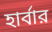
হার্বার